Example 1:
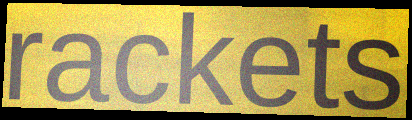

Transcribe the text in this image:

rackets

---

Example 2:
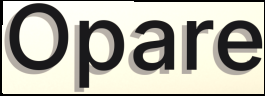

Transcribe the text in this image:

Opare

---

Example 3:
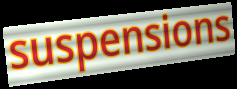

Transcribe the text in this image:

suspensions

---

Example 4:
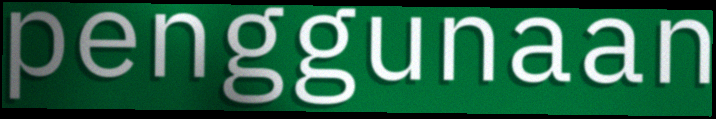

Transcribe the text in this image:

penggunaan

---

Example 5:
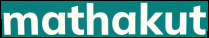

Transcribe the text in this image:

mathakut